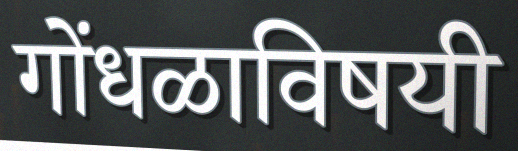
गोंधळाविषयी